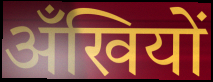
अँखियों